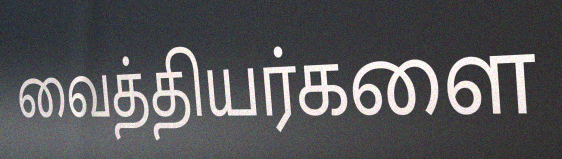
வைத்தியர்களை